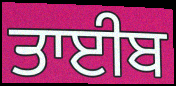
ਤਾਈਬ